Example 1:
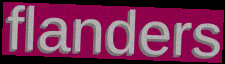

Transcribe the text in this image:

flanders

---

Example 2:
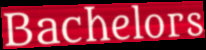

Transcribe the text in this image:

Bachelors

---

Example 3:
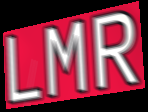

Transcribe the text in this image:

LMR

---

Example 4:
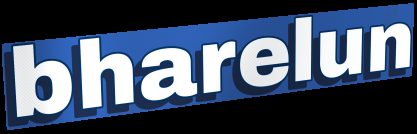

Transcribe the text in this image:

bharelun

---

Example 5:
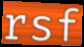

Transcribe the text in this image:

rsf